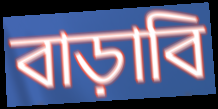
বাড়াবি